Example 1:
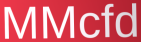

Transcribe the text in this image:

MMcfd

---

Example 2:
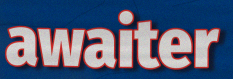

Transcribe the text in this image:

awaiter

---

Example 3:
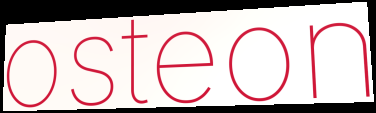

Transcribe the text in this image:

osteon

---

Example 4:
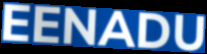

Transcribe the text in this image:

EENADU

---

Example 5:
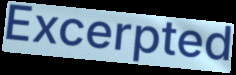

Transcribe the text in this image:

Excerpted